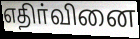
எதிர்வினை